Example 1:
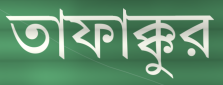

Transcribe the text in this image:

তাফাক্কুর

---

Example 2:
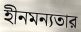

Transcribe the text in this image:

হীনমন্যতার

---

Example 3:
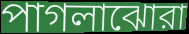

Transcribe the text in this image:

পাগলাঝোরা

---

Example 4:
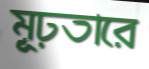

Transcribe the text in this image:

মূঢ়তারে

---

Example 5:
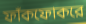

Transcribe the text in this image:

ফাঁকফোকরে